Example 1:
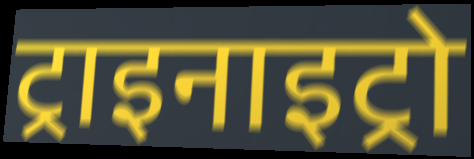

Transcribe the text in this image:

ट्राइनाइट्रो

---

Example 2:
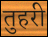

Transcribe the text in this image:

तुहरी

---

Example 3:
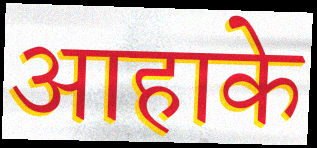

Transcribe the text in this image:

आहाके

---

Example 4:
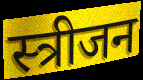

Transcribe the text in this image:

स्त्रीजन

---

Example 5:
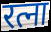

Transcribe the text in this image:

रत्ना